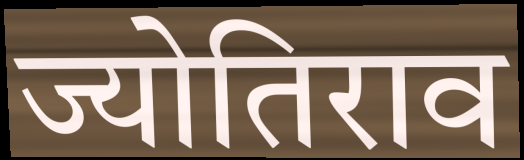
ज्‍योतिराव